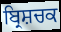
ਬ੍ਰਿਸ਼ਚਕ